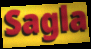
Sagla